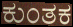
ಕುಂತಕ